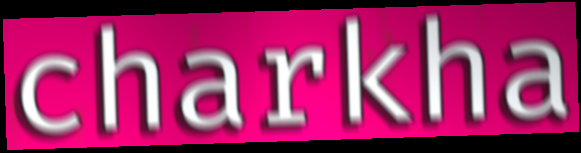
charkha